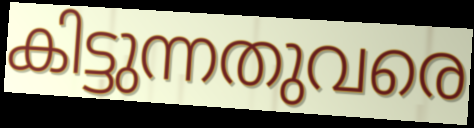
കിട്ടുന്നതുവരെ